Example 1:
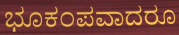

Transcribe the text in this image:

ಭೂಕಂಪವಾದರೂ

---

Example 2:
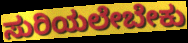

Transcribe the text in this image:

ಸುರಿಯಲೇಬೇಕು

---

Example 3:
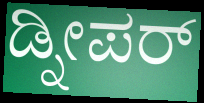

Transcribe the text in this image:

ಡ್ನೀಪರ್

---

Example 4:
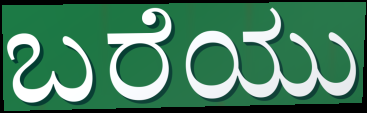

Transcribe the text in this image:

ಬರೆಯು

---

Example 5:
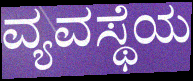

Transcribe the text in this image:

ವ್ಯವಸ್ಥೆಯ